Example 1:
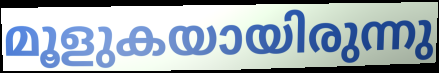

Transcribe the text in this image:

മൂളുകയായിരുന്നു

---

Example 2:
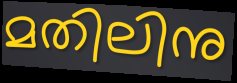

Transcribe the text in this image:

മതിലിനു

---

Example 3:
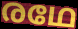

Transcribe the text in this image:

രഥേ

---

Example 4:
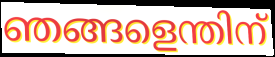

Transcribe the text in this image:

ഞങ്ങളെന്തിന്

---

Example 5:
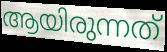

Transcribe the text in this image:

ആയിരുന്നത്